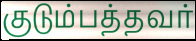
குடும்பத்தவர்